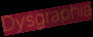
Dysgraphia